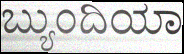
ಬ್ಯುಂದಿಯಾ